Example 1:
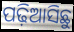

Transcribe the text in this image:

ପଢ଼ିଆସିଛୁ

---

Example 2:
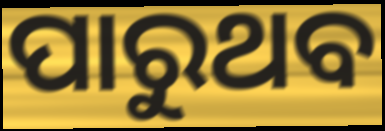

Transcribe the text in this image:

ପାରୁଥବ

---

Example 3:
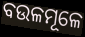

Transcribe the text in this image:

ବଉଳମୂଳେ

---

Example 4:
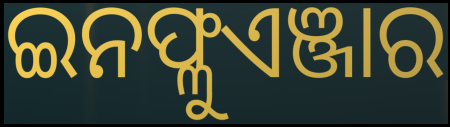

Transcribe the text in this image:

ଇନଫ୍ଳୁଏଞ୍ଜାର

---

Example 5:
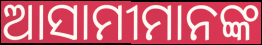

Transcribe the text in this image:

ଆସାମୀମାନଙ୍କ